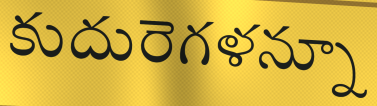
కుదురెగళన్నూ